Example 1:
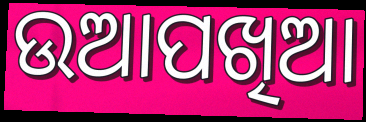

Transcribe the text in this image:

ଉଆପଖିଆ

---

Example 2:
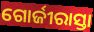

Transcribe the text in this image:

ଗୋର୍ଜୀରାସ୍ତା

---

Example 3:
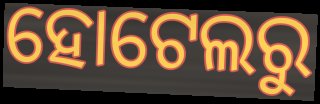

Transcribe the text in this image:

ହୋଟେଲରୁ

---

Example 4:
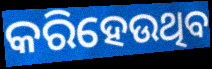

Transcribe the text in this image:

କରିହେଉଥିବ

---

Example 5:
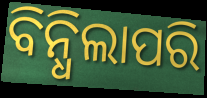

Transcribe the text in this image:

ବିନ୍ଧିଲାପରି